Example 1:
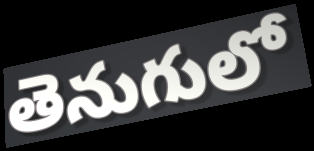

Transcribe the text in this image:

తెనుగులో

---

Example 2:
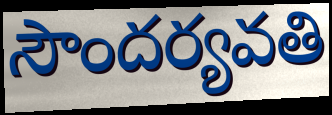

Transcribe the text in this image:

సౌందర్యవతి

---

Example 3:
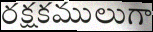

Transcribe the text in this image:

రక్షకములుగా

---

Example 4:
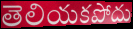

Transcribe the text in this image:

తెలియకపోదు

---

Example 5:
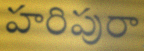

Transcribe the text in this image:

హరిపురా